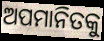
ଅପମାନିତକୁ